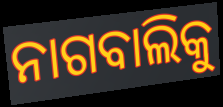
ନାଗବାଲିକୁ